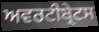
ਅਵਰਟੀਬ੍ਰੇਟਸ